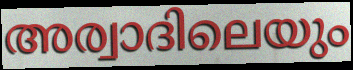
അര്വാദിലെയും